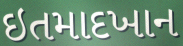
ઇતમાદખાન